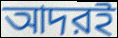
আদরই